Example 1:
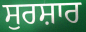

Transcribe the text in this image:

ਸੁਰਸ਼ਾਰ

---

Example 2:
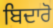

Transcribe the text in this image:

ਬਿਦਾਰੋ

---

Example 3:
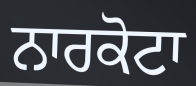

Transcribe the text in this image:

ਨਾਰਕੋਟਾ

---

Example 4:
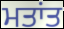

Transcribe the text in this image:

ਮਤਾਂਤ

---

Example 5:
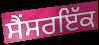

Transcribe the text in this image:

ਸੈਂਸਰਇੱਕ